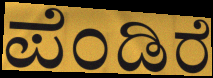
ಪೆಂಡಿರೆ